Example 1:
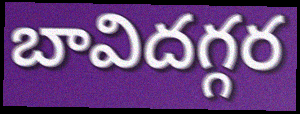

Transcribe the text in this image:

బావిదగ్గర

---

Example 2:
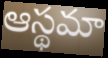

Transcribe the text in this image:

ఆస్థమా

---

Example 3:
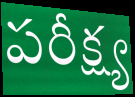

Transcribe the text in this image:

పరీక్ష్య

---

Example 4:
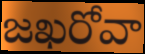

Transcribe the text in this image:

జఖరోవా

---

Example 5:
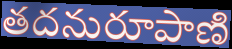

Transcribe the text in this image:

తదనురూపాణి